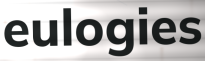
eulogies